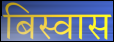
बिस्वास